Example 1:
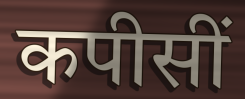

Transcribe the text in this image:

कपीसीं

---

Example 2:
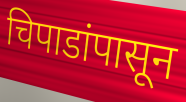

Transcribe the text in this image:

चिपाडांपासून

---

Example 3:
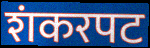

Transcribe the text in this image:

शंकरपट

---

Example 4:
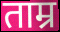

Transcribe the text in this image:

ताम्र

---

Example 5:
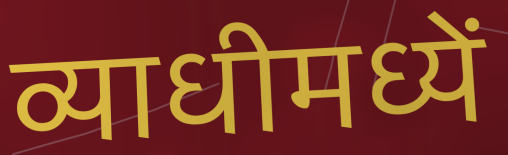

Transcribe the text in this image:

व्याधीमध्यें